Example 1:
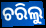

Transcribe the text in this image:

ଚରିଲୁ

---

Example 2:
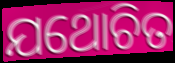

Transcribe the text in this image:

ଯଥୋଚିତ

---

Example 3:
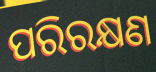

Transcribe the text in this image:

ପରିରକ୍ଷଣ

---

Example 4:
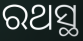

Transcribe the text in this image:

ରଥସ୍ଥ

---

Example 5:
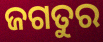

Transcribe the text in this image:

ଜଗତୁର